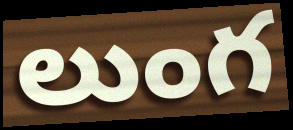
లుంగ